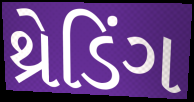
થ્રેડિંગ